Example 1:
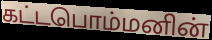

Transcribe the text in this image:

கட்டபொம்மனின்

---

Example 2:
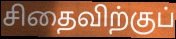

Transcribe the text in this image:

சிதைவிற்குப்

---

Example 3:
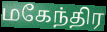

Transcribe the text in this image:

மகேந்திர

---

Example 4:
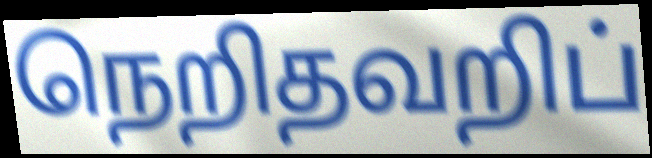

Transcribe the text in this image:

நெறிதவறிப்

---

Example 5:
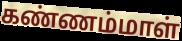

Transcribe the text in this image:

கண்ணம்மாள்